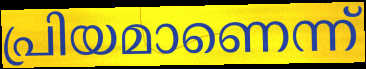
പ്രിയമാണെന്ന്